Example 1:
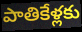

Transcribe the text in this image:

పాతికేళ్లకు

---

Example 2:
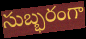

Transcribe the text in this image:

సుబ్భరంగా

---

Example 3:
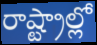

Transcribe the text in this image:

రాష్ట్రాల్లో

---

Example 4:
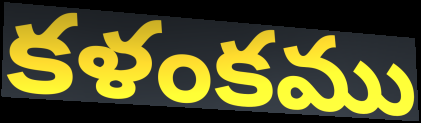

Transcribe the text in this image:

కళంకము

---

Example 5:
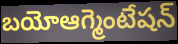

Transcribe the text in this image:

బయోఆగ్మెంటేషన్